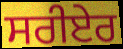
ਸਰੀਏਰ